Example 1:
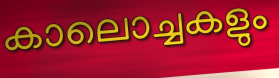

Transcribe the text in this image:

കാലൊച്ചകളും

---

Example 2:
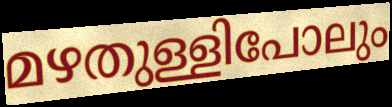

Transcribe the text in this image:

മഴതുള്ളിപോലും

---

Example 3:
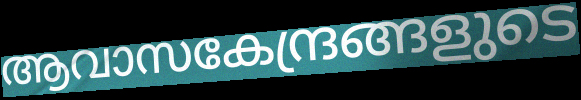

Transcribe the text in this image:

ആവാസകേന്ദ്രങ്ങളുടെ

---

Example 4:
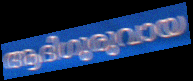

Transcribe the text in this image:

ആദിഗുരുവായ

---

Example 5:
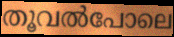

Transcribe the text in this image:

തൂവൽപോലെ